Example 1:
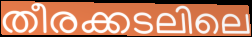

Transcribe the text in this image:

തീരക്കടലിലെ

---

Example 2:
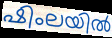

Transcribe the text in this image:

ഷിംലയിൽ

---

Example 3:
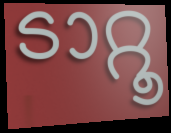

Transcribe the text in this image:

ടാറ്റൂ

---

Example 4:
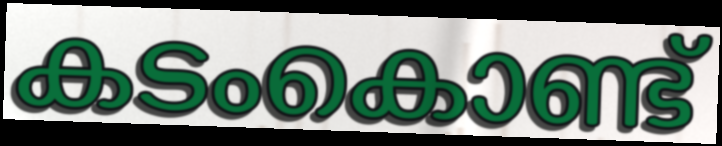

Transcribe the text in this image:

കടംകൊണ്ട്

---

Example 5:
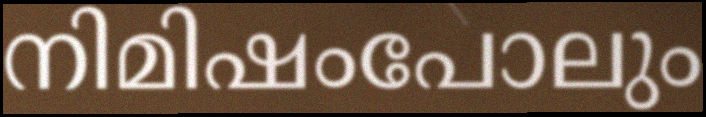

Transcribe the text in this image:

നിമിഷംപോലും